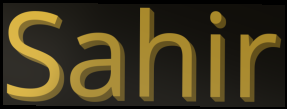
Sahir